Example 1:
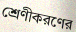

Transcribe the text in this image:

শ্রেণীকরণের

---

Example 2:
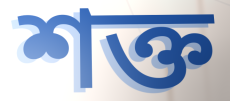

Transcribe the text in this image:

শক্ত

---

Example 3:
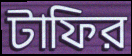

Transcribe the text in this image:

টাফির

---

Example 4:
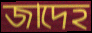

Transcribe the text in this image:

জাদেহ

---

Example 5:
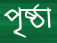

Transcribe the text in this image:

পৃষ্ঠা